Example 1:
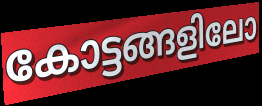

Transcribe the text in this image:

കോട്ടങ്ങളിലോ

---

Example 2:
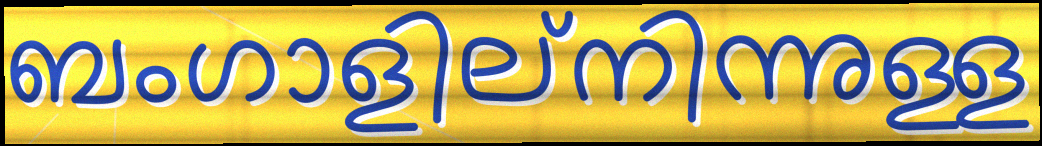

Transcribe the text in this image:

ബംഗാളില്നിന്നുള്ള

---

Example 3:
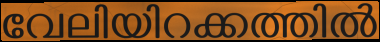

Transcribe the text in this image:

വേലിയിറക്കത്തിൽ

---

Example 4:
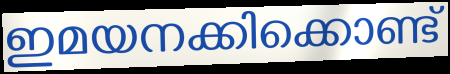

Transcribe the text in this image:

ഇമയനക്കിക്കൊണ്ട്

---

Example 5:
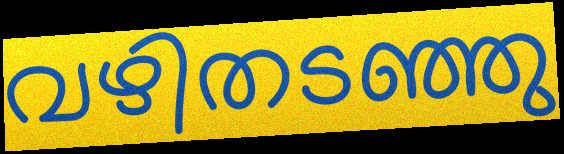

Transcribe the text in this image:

വഴിതടഞ്ഞു